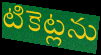
టికెట్లను